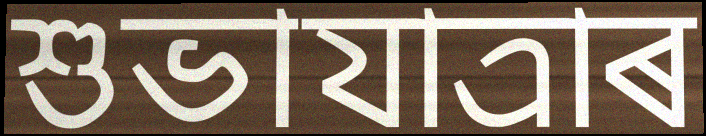
শুভাযাত্ৰাৰ